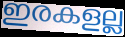
ഇരകളല്ല